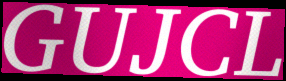
GUJCL